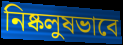
নিষ্কলুষভাবে